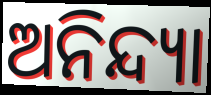
ଅନିନ୍ଦ୍ୟା